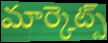
మార్కెట్స్